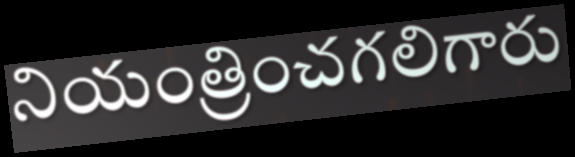
నియంత్రించగలిగారు